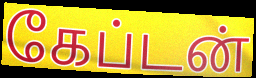
கேப்டன்